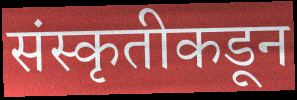
संस्कृतीकडून